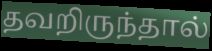
தவறிருந்தால்